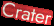
Crater